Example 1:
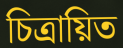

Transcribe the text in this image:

চিত্ৰায়িত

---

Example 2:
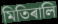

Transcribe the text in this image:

মিতিৰালি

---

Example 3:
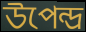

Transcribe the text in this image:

উপেন্দ্ৰ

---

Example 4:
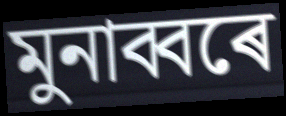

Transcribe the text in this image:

মুনাব্বৰে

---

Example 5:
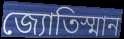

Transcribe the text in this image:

জ্যোতিস্মান